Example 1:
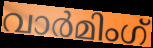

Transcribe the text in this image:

വാർമിംഗ്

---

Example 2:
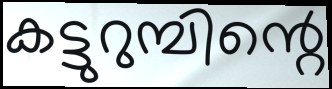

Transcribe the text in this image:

കട്ടുറുമ്പിന്റെ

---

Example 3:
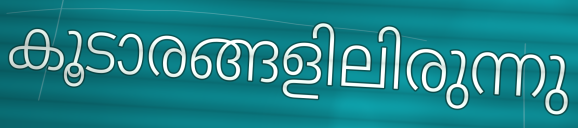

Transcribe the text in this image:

കൂടാരങ്ങളിലിരുന്നു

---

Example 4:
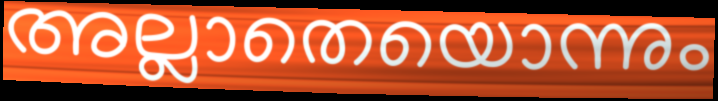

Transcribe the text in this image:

അല്ലാതെയൊന്നും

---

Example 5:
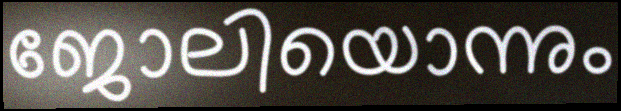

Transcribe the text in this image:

ജോലിയൊന്നും